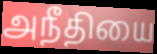
அநீதியை